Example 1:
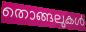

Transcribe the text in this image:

തൊങ്ങലുകൾ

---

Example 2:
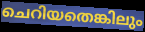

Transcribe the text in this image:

ചെറിയതെങ്കിലും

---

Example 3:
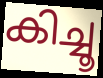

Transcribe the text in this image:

കിച്ചൂ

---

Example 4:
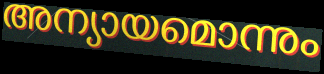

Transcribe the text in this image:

അന്യായമൊന്നും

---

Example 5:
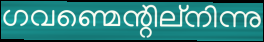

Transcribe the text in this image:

ഗവണ്മെന്റില്നിന്നു